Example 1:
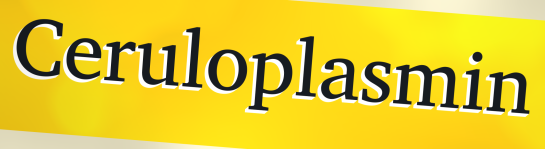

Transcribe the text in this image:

Ceruloplasmin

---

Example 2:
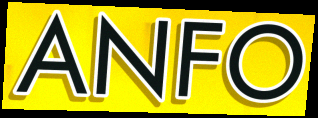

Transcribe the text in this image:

ANFO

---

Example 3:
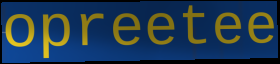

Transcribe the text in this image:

opreetee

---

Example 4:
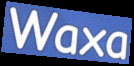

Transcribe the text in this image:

Waxa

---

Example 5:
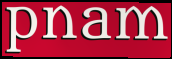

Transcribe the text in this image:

pnam